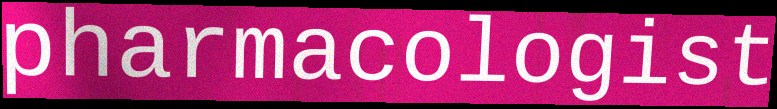
pharmacologist